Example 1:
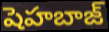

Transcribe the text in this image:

షెహబాజ్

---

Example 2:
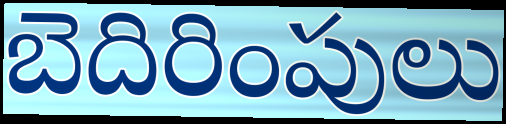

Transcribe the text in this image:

బెదిరింపులు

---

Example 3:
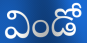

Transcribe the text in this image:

విండో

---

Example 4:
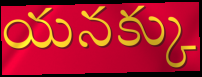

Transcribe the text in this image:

యనక్కు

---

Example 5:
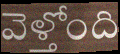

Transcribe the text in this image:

వెళ్తోంది